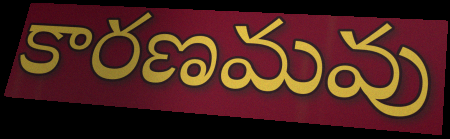
కారణమవు